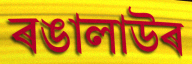
ৰঙালাউৰ